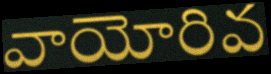
వాయోరివ